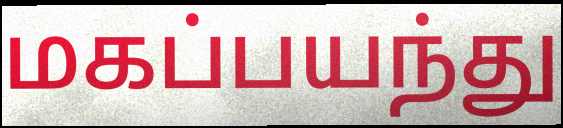
மகப்பயந்து